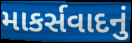
માકર્સવાદનું